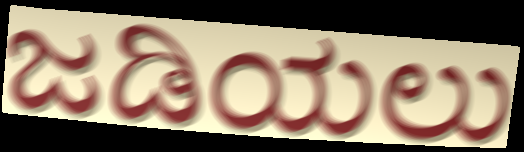
ಜಡಿಯಲು